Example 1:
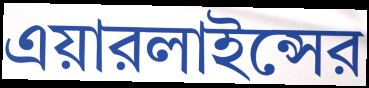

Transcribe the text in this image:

এয়ারলাইন্সের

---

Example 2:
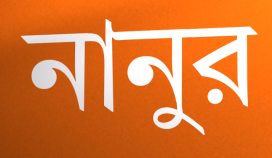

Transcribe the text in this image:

নানুর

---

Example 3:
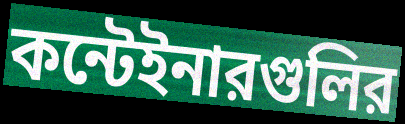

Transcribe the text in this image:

কন্টেইনারগুলির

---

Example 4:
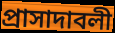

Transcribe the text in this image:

প্রাসাদাবলী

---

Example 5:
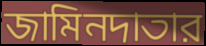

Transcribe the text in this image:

জামিনদাতার